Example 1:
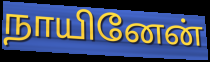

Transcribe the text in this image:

நாயினேன்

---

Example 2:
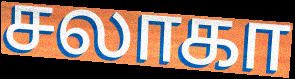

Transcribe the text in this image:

சலாகா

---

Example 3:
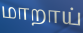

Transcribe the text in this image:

மாறாய்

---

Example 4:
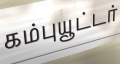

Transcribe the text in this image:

கம்புயூட்டர்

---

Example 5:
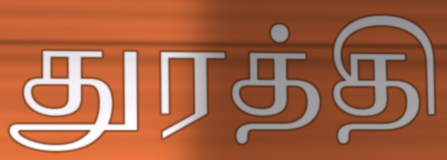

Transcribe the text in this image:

துரத்தி